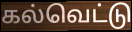
கல்வெட்டு